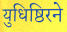
युधिष्ठिरने